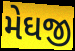
મેઘજી